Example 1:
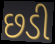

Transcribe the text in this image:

છડી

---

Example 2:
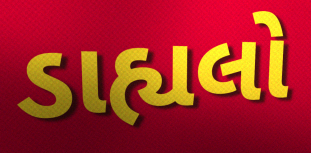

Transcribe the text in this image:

ડાહ્યલો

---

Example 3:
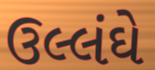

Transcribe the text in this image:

ઉલ્લંઘે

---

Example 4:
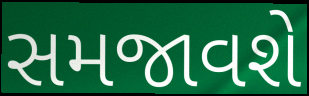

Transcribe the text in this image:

સમજાવશે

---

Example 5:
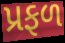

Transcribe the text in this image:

પ્રફળ